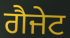
ਗੈਜੇਟ